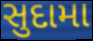
સુદામા